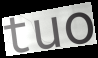
tuo